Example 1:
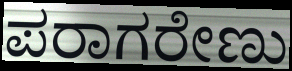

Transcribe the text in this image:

ಪರಾಗರೇಣು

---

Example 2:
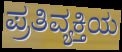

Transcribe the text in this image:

ಪ್ರತಿವ್ಯಕ್ತಿಯ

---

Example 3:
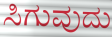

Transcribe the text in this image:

ಸಿಗುವುದು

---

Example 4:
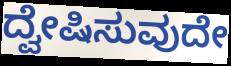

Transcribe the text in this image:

ದ್ವೇಷಿಸುವುದೇ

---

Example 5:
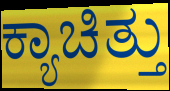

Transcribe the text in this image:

ಕ್ಯಾಚಿತ್ತು